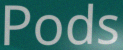
Pods